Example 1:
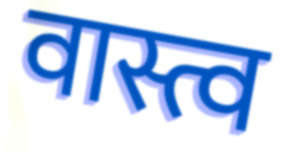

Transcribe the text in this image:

वास्त्व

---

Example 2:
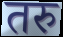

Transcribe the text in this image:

तरु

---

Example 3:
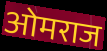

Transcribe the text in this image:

ओमराज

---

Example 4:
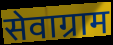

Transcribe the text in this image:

सेवाग्राम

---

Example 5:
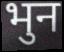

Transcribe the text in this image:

भुन